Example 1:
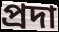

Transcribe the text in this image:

প্রদা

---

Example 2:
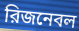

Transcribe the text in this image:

রিজনেবল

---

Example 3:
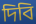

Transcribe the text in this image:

দিবি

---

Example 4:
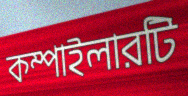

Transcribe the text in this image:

কম্পাইলারটি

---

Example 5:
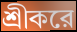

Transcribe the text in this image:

শ্রীকরে